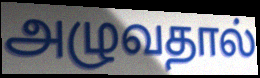
அழுவதால்